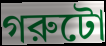
গরুটো